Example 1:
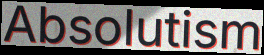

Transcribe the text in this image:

Absolutism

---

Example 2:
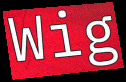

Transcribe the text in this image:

Wig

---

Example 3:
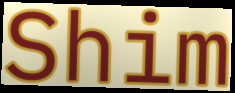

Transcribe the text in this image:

Shim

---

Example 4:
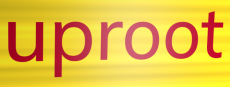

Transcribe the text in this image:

uproot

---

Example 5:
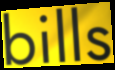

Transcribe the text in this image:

bills